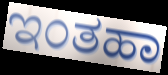
ಇಂತಹಾ